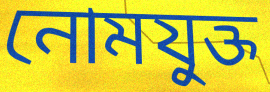
নোমযুক্ত